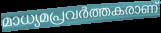
മാധ്യമപ്രവർത്തകരാണ്